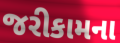
જરીકામના